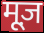
मूज़